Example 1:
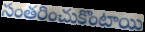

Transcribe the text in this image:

సంతరించుకొంటాయి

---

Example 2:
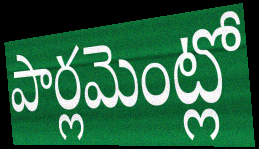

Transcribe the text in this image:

పార్లమెంట్లో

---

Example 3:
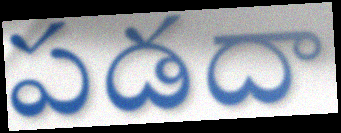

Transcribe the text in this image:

పడదా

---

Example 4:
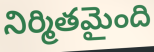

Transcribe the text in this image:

నిర్మితమైంది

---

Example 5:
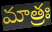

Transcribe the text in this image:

మాత్రః